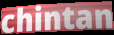
chintan